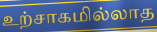
உற்சாகமில்லாத